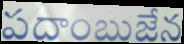
పదాంబుజేన